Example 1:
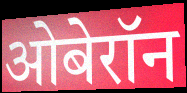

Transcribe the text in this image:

ओबेरॉन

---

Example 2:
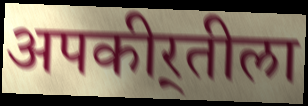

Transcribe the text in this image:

अपकीर्तीला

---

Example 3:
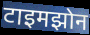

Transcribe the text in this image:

टाइमझोन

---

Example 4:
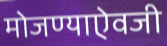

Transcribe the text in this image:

मोजण्याऐवजी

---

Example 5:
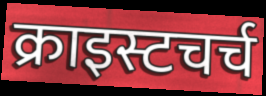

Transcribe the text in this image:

क्राइस्टचर्च